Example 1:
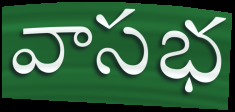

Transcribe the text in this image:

వాసభ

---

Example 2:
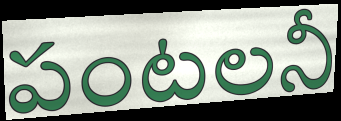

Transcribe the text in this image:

పంటలనీ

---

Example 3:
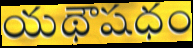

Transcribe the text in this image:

యథౌషధం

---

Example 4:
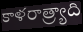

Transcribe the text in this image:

కాళరాత్ర్యాది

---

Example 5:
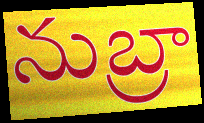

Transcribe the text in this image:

నుబ్రా